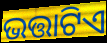
ଭତ୍ତାଟିଏ